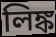
লিঙ্ক